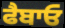
ਫੈਬਾਓ